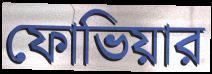
ফোভিয়ার